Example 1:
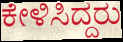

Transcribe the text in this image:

ಕೇಳಿಸಿದ್ದರು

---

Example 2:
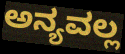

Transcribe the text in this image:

ಅನ್ಯವಲ್ಲ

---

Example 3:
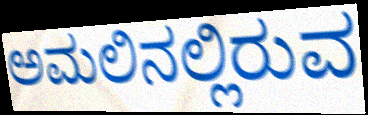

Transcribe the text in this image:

ಅಮಲಿನಲ್ಲಿರುವ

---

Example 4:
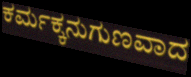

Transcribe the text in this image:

ಕರ್ಮಕ್ಕನುಗುಣವಾದ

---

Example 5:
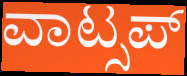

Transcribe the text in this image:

ವಾಟ್ಸಪ್